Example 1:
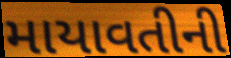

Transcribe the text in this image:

માયાવતીની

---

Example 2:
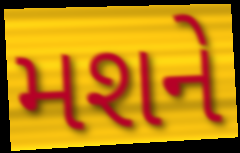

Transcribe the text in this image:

મશને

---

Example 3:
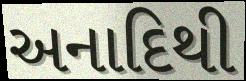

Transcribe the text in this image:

અનાદિથી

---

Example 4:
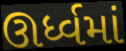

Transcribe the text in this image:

ઊર્ધ્વમાં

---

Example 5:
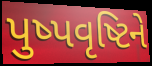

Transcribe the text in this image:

પુષ્પવૃષ્ટિને